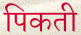
पिकती